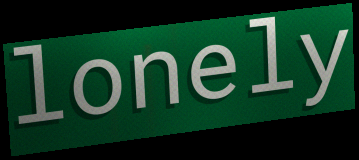
lonely